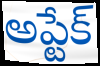
అప్టేక్